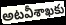
అటవీశాఖకు